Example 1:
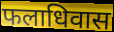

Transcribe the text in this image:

फलाधिवास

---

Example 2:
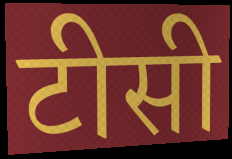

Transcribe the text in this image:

टीसी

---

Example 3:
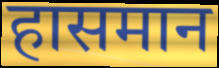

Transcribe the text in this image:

हासमान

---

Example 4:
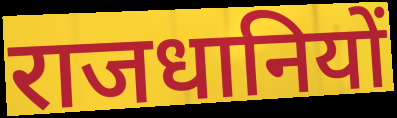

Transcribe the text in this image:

राजधानियों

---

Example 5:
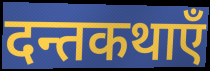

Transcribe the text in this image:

दन्तकथाएँ